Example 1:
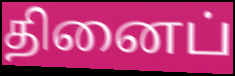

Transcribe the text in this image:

தினைப்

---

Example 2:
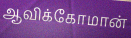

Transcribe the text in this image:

ஆவிக்கோமான்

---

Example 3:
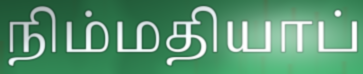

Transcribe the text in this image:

நிம்மதியாப்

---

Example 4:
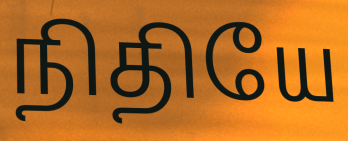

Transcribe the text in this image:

நிதியே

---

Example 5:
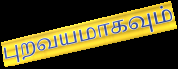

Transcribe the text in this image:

புறவயமாகவும்